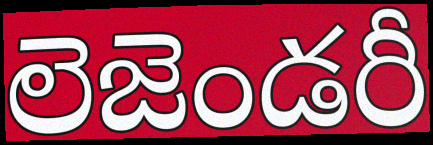
లెజెండరీ